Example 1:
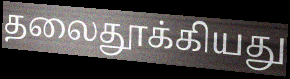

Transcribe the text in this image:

தலைதூக்கியது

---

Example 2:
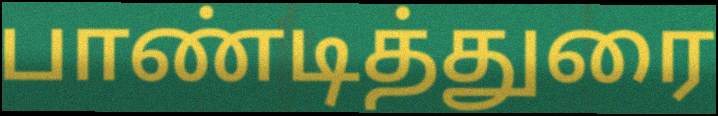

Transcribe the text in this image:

பாண்டித்துரை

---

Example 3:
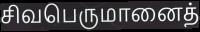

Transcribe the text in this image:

சிவபெருமானைத்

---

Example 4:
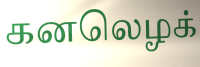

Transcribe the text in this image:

கனலெழக்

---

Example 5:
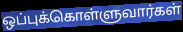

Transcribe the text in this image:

ஒப்புக்கொள்ளுவார்கள்